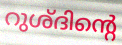
റുശ്ദിന്റെ